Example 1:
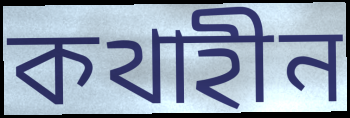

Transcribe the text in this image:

কথাহীন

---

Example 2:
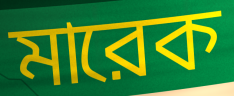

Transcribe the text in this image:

মারেক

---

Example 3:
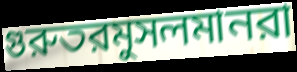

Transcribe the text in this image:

গুরুতরমুসলমানরা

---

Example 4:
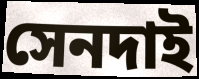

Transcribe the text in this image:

সেনদাই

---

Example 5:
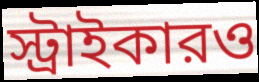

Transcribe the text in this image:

স্ট্রাইকারও